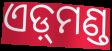
ଏଡ଼୍‌ମଣ୍ଡ